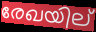
രേഖയില്